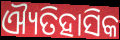
ଐ୍ୟତିହାସିକ